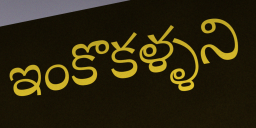
ఇంకొకళ్ళని